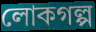
লোকগল্প